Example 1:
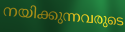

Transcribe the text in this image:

നയിക്കുന്നവരുടെ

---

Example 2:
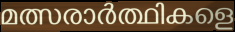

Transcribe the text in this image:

മത്സരാർത്ഥികളെ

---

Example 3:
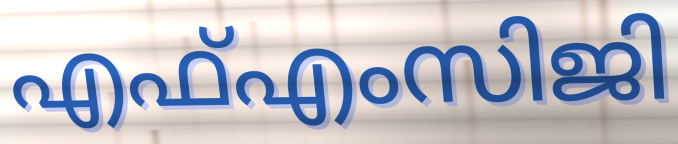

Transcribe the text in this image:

എഫ്എംസിജി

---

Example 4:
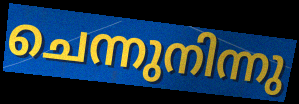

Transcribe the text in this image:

ചെന്നുനിന്നു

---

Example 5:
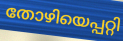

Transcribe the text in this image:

തോഴിയെപ്പറ്റി